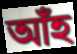
আঁহ